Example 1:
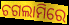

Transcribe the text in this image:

ଚଗଲାମିରେ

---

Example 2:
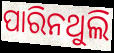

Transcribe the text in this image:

ପାରିନଥୁଲି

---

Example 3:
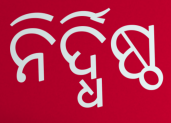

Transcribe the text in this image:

ନିର୍ଦ୍ଧିଷ୍ଠ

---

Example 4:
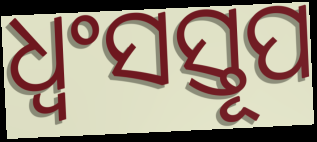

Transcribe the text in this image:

ଧ୍ୱଂସସ୍ତୂପ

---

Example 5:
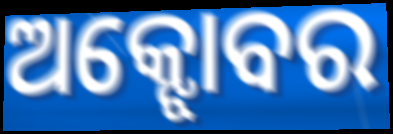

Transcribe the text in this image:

ଅକ୍ଝୋବର